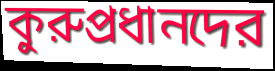
কুরুপ্রধানদের